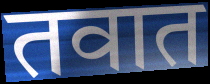
तवात